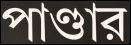
পাণ্ডার